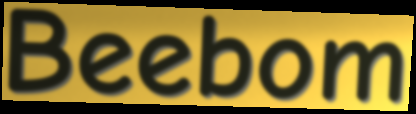
Beebom